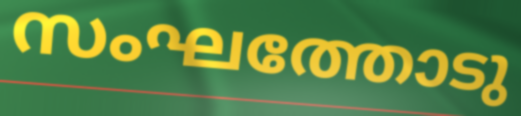
സംഘത്തോടു